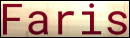
Faris